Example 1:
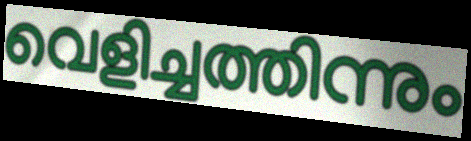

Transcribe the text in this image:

വെളിച്ചത്തിന്നും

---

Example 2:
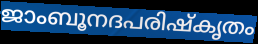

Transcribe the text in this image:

ജാംബൂനദപരിഷ്കൃതം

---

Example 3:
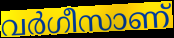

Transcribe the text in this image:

വർഗീസാണ്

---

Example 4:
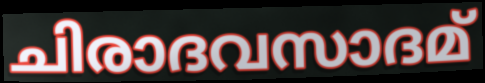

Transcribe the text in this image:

ചിരാദവസാദമ്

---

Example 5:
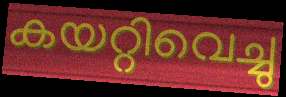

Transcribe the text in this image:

കയറ്റിവെച്ചു